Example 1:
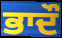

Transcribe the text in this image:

ਭਾਦੌ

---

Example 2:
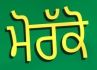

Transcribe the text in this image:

ਮੋਰੱਕੋ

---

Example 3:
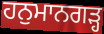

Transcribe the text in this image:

ਹਨੁਮਾਨਗੜ੍ਹ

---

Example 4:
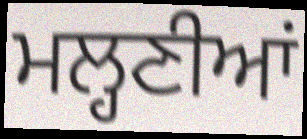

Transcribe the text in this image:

ਮਲ੍ਹਣੀਆਂ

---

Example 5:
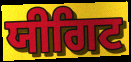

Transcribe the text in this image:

ਯੀਗਿਟ